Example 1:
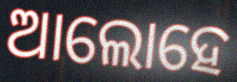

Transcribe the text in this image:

ଆଲୋହେ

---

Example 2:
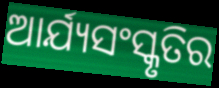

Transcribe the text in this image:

ଆର୍ଯ୍ୟସଂସ୍କୃତିର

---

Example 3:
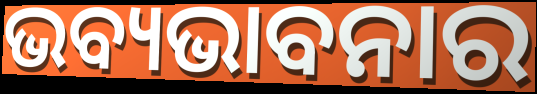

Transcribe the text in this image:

ଭବ୍ୟଭାବନାର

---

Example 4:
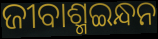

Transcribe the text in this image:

ଜୀବାଶ୍ମଇନ୍ଧନ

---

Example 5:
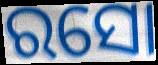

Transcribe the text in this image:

ରସୋ